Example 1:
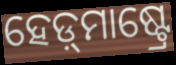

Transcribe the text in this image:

ହେଡ଼୍‌ମାଷ୍ଟ୍ରେ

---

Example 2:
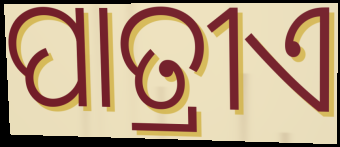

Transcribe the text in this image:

ପାତ୍ରୀଏ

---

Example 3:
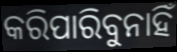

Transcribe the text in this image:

କରିପାରିବୁନାହିଁ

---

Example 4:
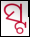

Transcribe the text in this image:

ସ୍ଟ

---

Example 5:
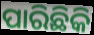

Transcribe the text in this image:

ପାରିଛିକି